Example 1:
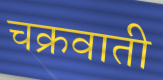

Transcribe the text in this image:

चक्रवाती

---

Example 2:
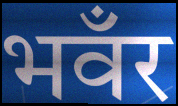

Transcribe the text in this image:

भवँर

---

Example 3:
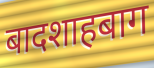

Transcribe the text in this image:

बादशाहबाग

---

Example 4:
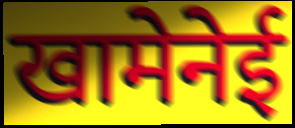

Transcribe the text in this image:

खामेनेई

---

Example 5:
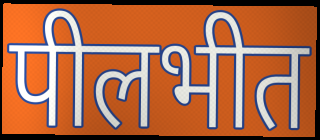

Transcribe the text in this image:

पीलभीत